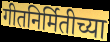
गीतनिर्मितीच्या